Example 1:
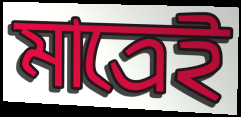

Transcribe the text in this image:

মাত্রেই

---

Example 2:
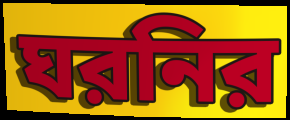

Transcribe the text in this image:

ঘরনির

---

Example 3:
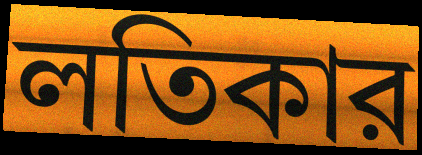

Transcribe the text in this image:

লতিকার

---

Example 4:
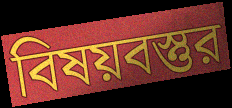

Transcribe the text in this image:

বিষয়বস্তুর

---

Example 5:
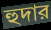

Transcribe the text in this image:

হুদার